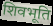
शिवभूति